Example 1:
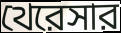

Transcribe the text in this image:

থেরেসার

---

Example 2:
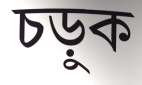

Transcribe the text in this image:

চড়ুক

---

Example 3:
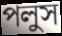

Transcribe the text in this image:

পলুস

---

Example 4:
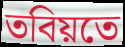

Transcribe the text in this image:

তবিয়তে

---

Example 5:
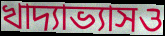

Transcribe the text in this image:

খাদ্যাভ্যাসও